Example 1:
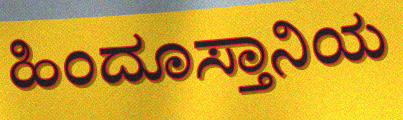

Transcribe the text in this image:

ಹಿಂದೂಸ್ತಾನಿಯ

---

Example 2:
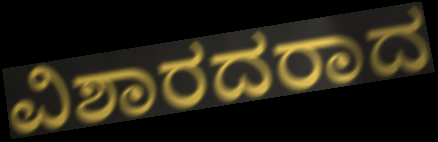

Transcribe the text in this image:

ವಿಶಾರದರಾದ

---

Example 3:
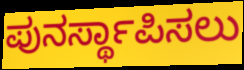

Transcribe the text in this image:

ಪುನರ್ಸ್ಥಾಪಿಸಲು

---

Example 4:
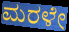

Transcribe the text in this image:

ಮರಳೇ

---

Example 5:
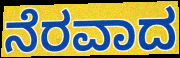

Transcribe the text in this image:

ನೆರವಾದ